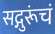
सद्गुरूंचं